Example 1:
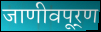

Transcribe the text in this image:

जाणीवपूर्ण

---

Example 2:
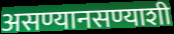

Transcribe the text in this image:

असण्यानसण्याशी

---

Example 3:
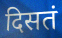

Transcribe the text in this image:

दिसतं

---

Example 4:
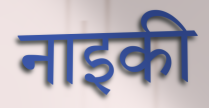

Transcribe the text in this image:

नाइकी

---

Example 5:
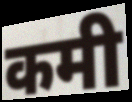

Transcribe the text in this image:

कमी